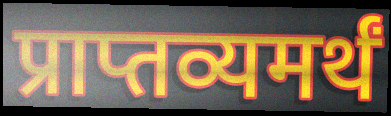
प्राप्तव्यमर्थं